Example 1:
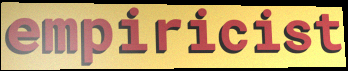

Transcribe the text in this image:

empiricist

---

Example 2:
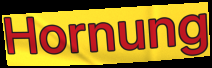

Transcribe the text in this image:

Hornung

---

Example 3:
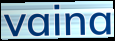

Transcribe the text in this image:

vaina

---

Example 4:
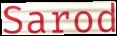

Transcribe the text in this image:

Sarod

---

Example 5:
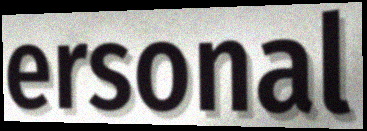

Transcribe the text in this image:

ersonal